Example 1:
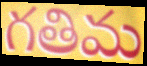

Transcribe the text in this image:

గతిమ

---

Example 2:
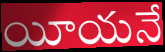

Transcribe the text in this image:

యీయనే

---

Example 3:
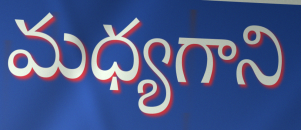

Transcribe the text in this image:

మధ్యగాని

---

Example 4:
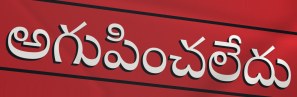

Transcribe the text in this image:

అగుపించలేదు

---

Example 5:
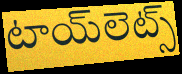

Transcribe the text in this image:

టాయ్‌లెట్స్